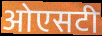
ओएसटी